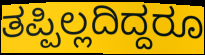
ತಪ್ಪಿಲ್ಲದಿದ್ದರೂ